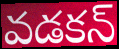
వడకన్